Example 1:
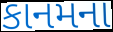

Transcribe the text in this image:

કાનમના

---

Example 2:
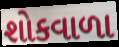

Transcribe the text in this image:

શોકવાળા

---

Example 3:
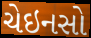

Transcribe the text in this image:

ચેઇનસો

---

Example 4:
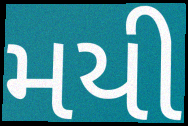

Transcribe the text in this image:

મયી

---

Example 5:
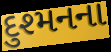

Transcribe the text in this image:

દુશ્મનના